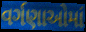
વર્ગણાઓમાં